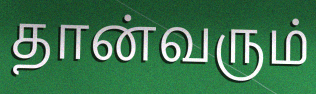
தான்வரும்